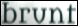
brunt